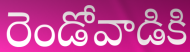
రెండోవాడికి